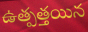
ఉత్పత్తయిన